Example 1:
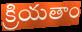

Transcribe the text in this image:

క్రియతాం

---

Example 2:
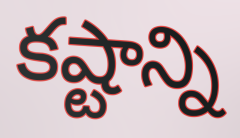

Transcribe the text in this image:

కష్టాన్ని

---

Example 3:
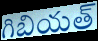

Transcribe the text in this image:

గిబియత్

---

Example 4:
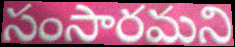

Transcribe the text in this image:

సంసారమని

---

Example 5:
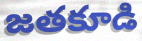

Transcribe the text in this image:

జతకూడి